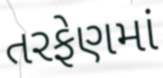
તરફેણમાં